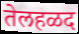
तेलहळद